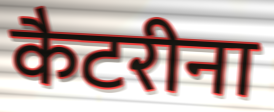
कैटरीना